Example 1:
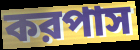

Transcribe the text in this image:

করপাস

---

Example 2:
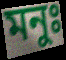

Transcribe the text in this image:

মনুঃ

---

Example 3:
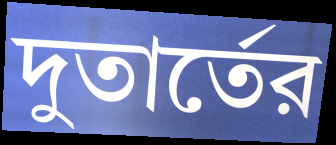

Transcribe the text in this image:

দুতার্তের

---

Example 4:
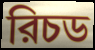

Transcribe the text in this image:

রিচড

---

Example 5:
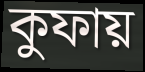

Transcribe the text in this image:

কুফায়